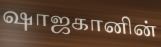
ஷாஜகானின்